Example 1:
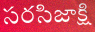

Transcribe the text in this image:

సరసిజాక్షి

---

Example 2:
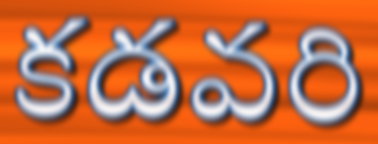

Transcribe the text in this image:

కడవరి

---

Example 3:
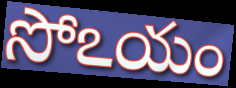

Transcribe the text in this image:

సోఽయం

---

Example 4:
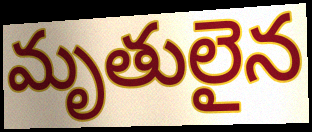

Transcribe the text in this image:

మృతులైన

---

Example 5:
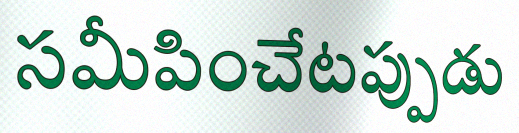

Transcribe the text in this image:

సమీపించేటప్పుడు